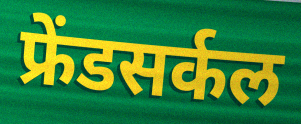
फ्रेंडसर्कल